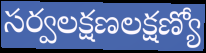
సర్వలక్షణలక్షణ్యో